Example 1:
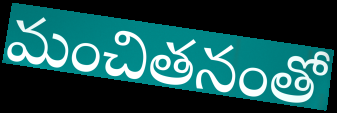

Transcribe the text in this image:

మంచితనంతో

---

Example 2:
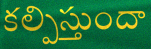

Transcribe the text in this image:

కల్పిస్తుందా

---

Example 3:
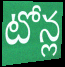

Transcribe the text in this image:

టోన్ల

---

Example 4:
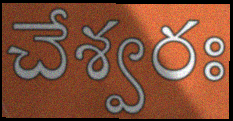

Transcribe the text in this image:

చేశ్వరః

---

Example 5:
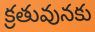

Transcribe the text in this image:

క్రతువునకు